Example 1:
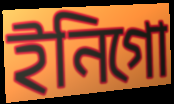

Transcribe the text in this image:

ইনিগো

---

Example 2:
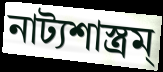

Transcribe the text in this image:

নাট্যশাস্ত্রম্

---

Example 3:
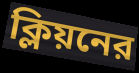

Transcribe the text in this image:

ক্লিয়নের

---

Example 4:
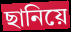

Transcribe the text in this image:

ছানিয়ে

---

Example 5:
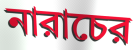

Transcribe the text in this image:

নারাচের